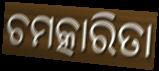
ଚମତ୍କାରିତା